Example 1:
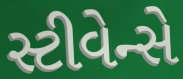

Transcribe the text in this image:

સ્ટીવેન્સે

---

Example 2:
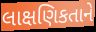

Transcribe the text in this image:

લાક્ષણિકતાને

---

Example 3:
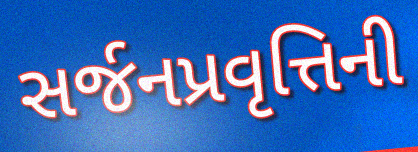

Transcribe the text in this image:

સર્જનપ્રવૃત્તિની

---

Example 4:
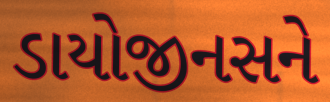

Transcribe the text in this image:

ડાયોજીનસને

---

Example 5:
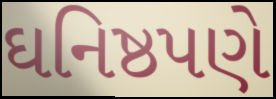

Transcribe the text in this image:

ઘનિષ્ઠપણે